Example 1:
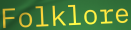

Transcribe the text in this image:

Folklore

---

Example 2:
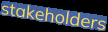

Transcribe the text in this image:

stakeholders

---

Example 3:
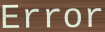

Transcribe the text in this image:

Error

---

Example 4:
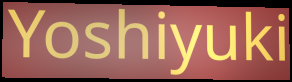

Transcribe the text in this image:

Yoshiyuki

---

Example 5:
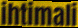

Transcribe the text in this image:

ihtimali